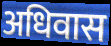
अधिवास